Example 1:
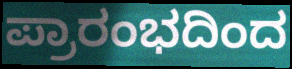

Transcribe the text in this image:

ಪ್ರಾರಂಭದಿಂದ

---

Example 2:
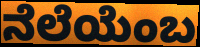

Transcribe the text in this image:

ನೆಲೆಯೆಂಬ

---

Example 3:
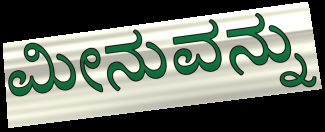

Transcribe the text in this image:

ಮೀನುವನ್ನು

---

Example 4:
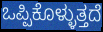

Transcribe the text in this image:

ಒಪ್ಪಿಕೊಳ್ಳುತ್ತದೆ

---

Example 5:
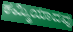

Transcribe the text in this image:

ಕಮ್ಮಿಯಾದವು